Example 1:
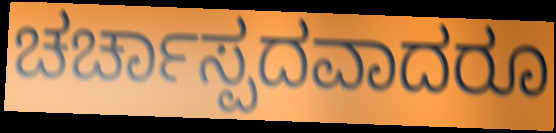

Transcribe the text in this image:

ಚರ್ಚಾಸ್ಪದವಾದರೂ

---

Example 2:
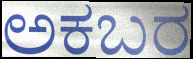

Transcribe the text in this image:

ಅಕಬರ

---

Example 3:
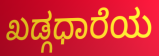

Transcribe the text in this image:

ಖಡ್ಗಧಾರೆಯ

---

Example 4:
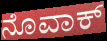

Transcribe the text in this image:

ನೊವಾಕ್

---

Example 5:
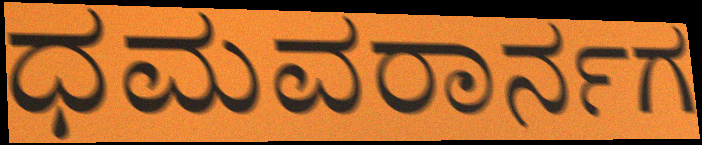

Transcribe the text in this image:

ಧಮವರಾರ್ನಗ